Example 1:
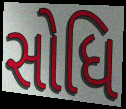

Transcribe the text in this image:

સોધિ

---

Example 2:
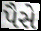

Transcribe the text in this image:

પૈસે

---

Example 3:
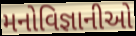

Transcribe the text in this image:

મનોવિજ્ઞાનીઓ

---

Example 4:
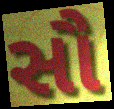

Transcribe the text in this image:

સૌ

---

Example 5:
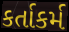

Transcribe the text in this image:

કર્તાકર્મ